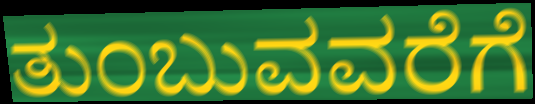
ತುಂಬುವವರೆಗೆ